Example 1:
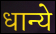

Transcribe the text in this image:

धान्ये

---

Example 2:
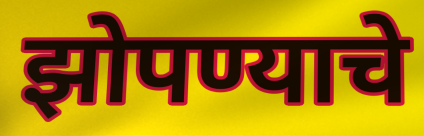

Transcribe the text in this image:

झोपण्याचे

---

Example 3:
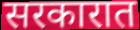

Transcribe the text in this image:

सरकारात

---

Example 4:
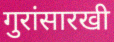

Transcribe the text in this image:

गुरांसारखी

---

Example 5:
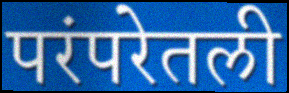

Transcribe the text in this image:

परंपरेतली